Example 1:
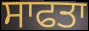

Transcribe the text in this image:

ਸਾਫਤਾ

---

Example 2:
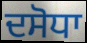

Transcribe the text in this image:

ਦਸੋਧਾ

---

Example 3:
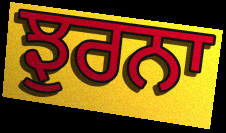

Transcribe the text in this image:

ਝੁਰਨਾ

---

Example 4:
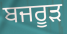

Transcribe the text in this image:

ਬਜਰੂੜ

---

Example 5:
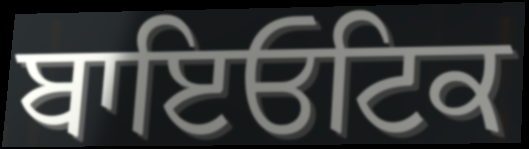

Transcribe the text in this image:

ਬਾਇਓਟਿਕ